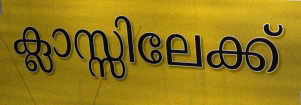
ക്ലാസ്സിലേക്ക്